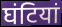
घंटियां